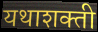
यथाशक्‍ती